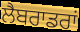
ਲੈਬਰਾਡਰਾਂ